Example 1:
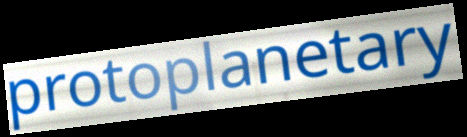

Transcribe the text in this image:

protoplanetary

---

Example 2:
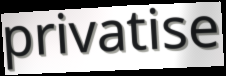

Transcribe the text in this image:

privatise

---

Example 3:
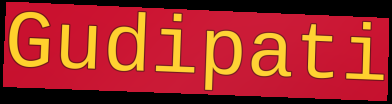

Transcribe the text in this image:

Gudipati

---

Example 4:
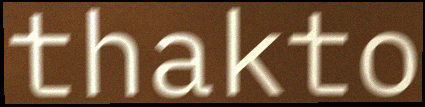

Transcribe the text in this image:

thakto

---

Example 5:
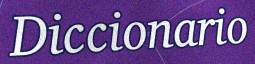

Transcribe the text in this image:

Diccionario